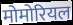
मोमोरियल